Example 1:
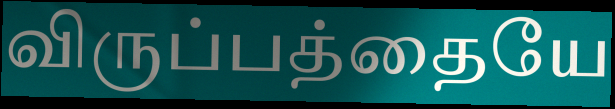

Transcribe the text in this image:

விருப்பத்தையே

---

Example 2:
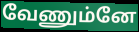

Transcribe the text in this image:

வேணும்னே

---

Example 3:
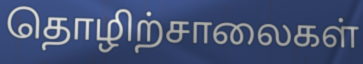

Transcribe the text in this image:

தொழிற்சாலைகள்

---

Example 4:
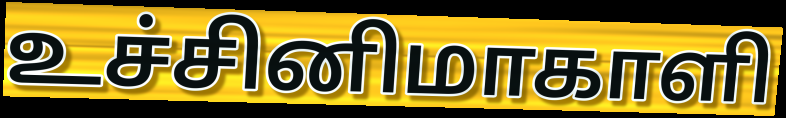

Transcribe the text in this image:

உச்சினிமாகாளி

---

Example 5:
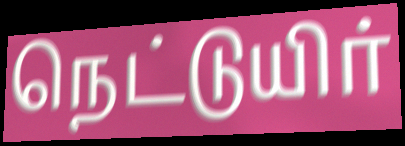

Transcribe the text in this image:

நெட்டுயிர்